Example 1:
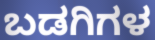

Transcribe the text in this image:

ಬಡಗಿಗಳ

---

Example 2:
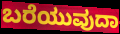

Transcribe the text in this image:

ಬರೆಯುವುದಾ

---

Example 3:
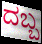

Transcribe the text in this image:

ದಬ್ಬ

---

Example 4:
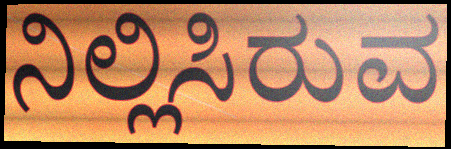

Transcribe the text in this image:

ನಿಲ್ಲಿಸಿರುವ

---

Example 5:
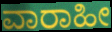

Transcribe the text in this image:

ವಾರಾಹೀ